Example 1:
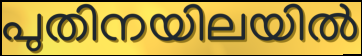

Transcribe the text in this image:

പുതിനയിലയിൽ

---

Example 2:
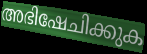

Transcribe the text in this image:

അഭിഷേചിക്കുക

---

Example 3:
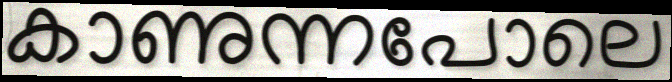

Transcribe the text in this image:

കാണുന്നപോലെ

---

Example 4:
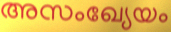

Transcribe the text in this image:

അസംഖ്യേയം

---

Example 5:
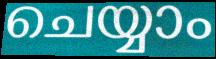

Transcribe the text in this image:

ചെയ്യാം